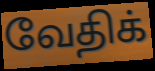
வேதிக்